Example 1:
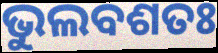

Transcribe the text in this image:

ଭୁଲବଶତଃ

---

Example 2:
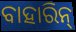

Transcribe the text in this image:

ବାହାରିନ୍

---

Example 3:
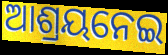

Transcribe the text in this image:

ଆଶ୍ରୟନେଇ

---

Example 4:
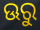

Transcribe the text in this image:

ଊରୁ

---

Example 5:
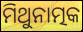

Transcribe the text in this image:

ମିଥୁନାତ୍ମକ